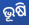
ଭୂଷି